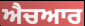
ਐਚਆਰ